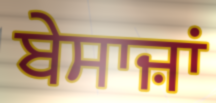
ਬੇਸਾਜ਼ਾਂ